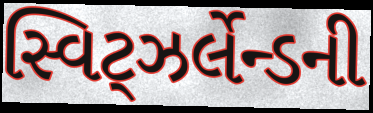
સ્વિટ્ઝર્લેન્ડની